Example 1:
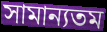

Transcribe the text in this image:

সামান্যতম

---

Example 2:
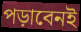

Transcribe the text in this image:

পড়াবেনই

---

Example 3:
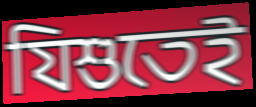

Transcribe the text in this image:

যিশুতেই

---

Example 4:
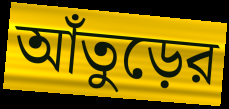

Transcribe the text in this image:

আঁতুড়ের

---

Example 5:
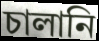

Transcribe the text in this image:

চালানি